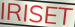
IRISET